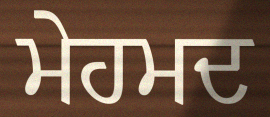
ਮੇਹਮਦ